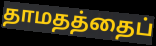
தாமதத்தைப்